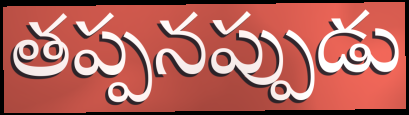
తప్పనప్పుడు